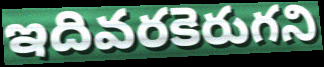
ఇదివరకెరుగని